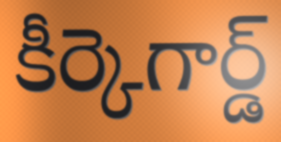
కీర్కెగార్డ్